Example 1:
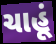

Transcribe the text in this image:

ચાહૂં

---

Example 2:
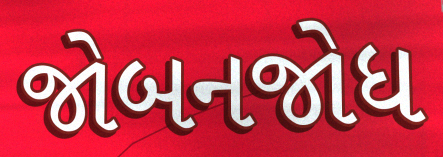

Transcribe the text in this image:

જોબનજોધ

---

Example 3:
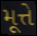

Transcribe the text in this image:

મૂત્તે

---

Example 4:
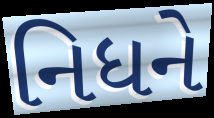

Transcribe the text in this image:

નિધને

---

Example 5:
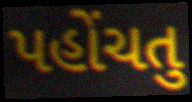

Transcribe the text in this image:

પહોંચતુ